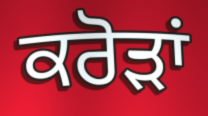
ਕਰੋਡ਼ਾਂ